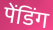
पेंडिंग